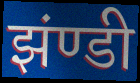
झंण्डी